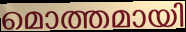
മൊത്തമായി